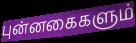
புன்னகைகளும்